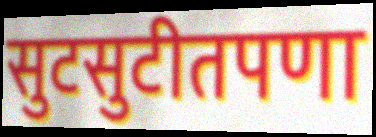
सुटसुटीतपणा